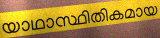
യാഥാസ്ഥിതികമായ